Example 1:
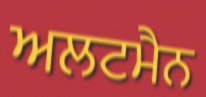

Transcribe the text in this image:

ਅਲਟਮੈਨ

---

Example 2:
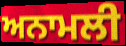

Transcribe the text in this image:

ਅਨਾਮਲੀ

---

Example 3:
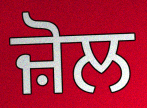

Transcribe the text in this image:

ਜ਼ੋਲ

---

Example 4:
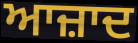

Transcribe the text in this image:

ਆਜ਼ਾਦ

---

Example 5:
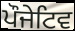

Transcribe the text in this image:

ਪੌਜੇਟਿਵ